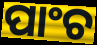
ପାଂଚ